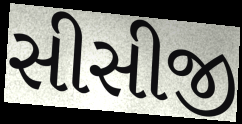
સીસીજી